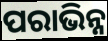
ପରାଭିନ୍ନ